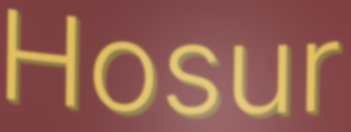
Hosur